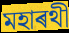
মহাৰথী